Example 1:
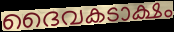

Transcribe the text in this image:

ദൈവകടാക്ഷം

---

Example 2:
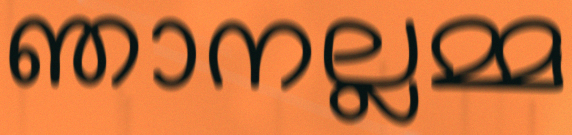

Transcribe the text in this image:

ഞാനല്ലമ്മ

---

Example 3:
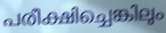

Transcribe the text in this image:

പരീക്ഷിച്ചെങ്കിലും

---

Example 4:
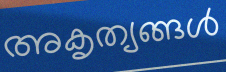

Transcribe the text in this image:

അകൃത്യങ്ങൾ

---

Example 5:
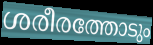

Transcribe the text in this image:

ശരീരത്തോടും